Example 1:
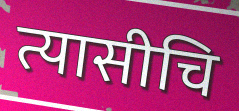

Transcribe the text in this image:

त्यासीचि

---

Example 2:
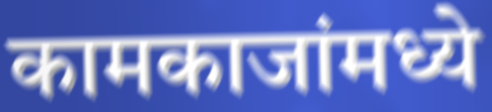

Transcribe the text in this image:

कामकाजांमध्ये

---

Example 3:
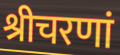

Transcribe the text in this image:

श्रीचरणां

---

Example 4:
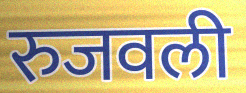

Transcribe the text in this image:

रुजवली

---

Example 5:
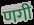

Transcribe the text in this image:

णगी